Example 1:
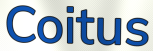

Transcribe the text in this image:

Coitus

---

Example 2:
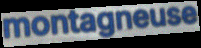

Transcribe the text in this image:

montagneuse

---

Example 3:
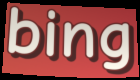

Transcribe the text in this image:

bing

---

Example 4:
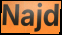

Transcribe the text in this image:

Najd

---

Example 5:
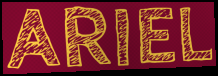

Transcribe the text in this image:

ARIEL